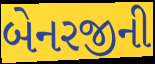
બેનરજીની